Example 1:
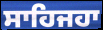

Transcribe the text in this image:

ਸਾਹਿਜਹਾ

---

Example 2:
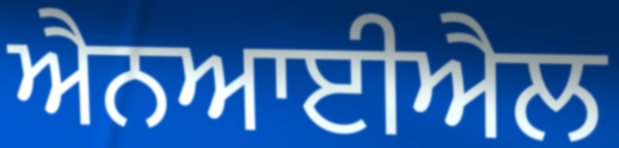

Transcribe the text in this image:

ਐਨਆਈਐਲ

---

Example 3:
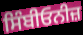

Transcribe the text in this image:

ਸਿੰਬੀਓਨੀਜ਼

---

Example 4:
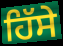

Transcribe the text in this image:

ਹਿੱਸੇ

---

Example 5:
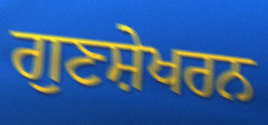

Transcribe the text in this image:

ਗੁਣਸ਼ੇਖਰਨ